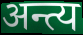
अन्त्य